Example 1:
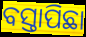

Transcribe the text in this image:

ବସ୍ତାପିଛା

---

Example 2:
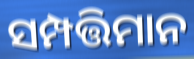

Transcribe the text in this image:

ସମ୍ପତ୍ତିମାନ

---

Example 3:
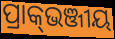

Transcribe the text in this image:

ପ୍ରାକ୍‌ଭଞ୍ଜୀୟ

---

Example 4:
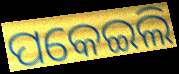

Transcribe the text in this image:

ପକେଇଲି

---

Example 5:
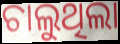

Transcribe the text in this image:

ଚାଲୁଥିଲା